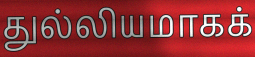
துல்லியமாகக்